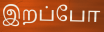
இறப்போ